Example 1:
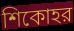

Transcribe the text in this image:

শিকোহর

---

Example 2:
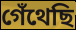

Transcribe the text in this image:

গেঁথেছি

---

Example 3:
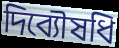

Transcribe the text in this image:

দিব্যৌষধি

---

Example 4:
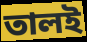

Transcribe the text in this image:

তালই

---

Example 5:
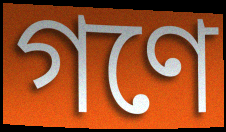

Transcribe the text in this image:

গণে